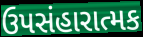
ઉપસંહારાત્મક